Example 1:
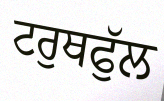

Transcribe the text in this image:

ਟਰੁਥਫੁੱਲ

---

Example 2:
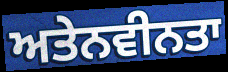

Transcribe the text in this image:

ਅਤੇਨਵੀਨਤਾ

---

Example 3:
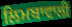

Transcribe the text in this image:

ਲਿਮਬਾਵਾਲੀ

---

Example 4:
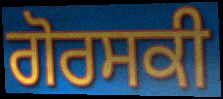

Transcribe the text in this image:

ਗੋਰਸਕੀ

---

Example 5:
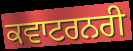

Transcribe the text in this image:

ਕਵਾਟਰਨਰੀ